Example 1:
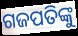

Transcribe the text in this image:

ଗଜପତିଙ୍କୁ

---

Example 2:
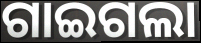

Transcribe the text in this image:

ଗାଇଗଲା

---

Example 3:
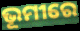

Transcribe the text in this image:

ଭୂମୀରେ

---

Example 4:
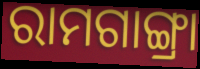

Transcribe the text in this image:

ରାମଗାଙ୍ଗ୍ରା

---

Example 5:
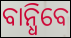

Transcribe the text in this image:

ବାନ୍ଧିବେ